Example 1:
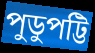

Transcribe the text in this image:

পুডুপট্টি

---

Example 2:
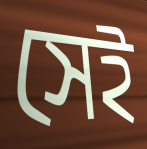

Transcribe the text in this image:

সেই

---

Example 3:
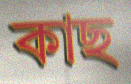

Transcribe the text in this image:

কাছ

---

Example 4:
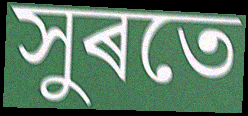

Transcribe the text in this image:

সুৰতে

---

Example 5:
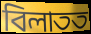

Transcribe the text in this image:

বিলাতত